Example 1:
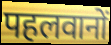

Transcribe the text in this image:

पहलवानों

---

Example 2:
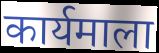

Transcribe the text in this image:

कार्यमाला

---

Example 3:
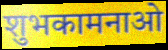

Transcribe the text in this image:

शुभकामनाओ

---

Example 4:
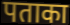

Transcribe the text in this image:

पताका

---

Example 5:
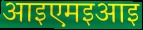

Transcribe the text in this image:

आइएमइआइ